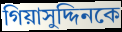
গিয়াসুদ্দিনকে